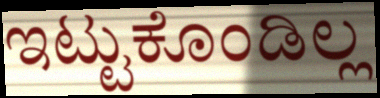
ಇಟ್ಟುಕೊಂಡಿಲ್ಲ